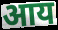
आय